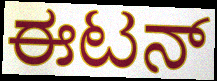
ಈಟನ್